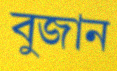
বুজান